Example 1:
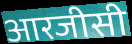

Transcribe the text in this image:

आरजीसी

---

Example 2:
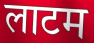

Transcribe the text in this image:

लाटम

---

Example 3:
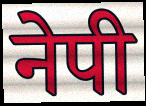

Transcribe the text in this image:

नेपी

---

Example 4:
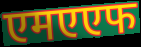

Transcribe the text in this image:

एमएएफ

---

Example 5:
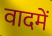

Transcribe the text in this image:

वादमें